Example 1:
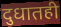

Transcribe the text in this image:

दुधातही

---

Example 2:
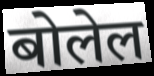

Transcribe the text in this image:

बोलेल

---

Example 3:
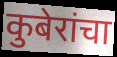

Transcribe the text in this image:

कुबेरांचा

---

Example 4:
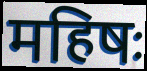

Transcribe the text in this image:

महिषः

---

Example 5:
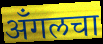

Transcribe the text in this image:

अँगलचा